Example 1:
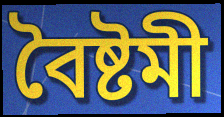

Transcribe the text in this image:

বৈষ্টমী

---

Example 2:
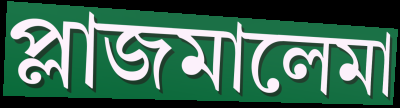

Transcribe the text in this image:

প্লাজমালেমা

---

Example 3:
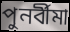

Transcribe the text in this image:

পুনর্বীমা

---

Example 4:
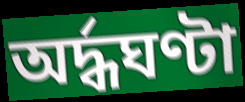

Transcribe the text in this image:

অর্দ্ধঘণ্টা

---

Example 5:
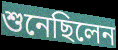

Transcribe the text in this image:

শুনেছিলেন